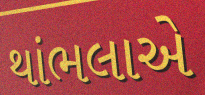
થાંભલાએ